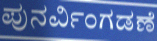
ಪುನರ್ವಿಂಗಡಣೆ